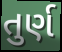
તુર્ણ